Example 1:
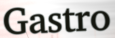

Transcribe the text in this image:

Gastro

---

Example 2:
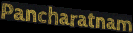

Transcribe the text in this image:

Pancharatnam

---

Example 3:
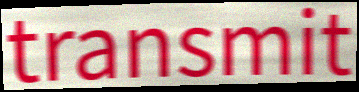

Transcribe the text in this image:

transmit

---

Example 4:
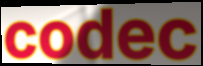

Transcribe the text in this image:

codec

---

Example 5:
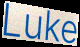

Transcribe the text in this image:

Luke